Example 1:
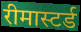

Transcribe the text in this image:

रीमास्टर्ड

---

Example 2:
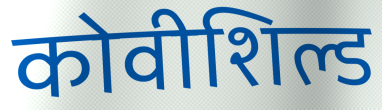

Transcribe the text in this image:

कोवीशिल्ड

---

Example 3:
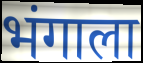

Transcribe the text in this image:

भंगाला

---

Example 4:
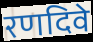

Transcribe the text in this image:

रणदिवे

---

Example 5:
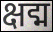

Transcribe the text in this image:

क्षद्म